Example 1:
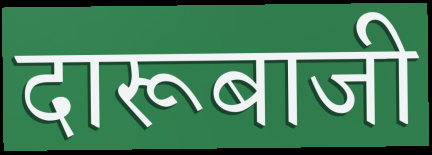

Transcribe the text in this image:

दारूबाजी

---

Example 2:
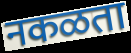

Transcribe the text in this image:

नकळता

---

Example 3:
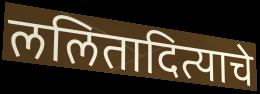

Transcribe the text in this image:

ललितादित्याचे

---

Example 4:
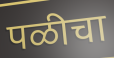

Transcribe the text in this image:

पळीचा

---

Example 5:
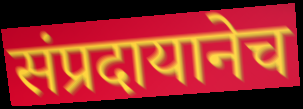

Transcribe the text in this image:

संप्रदायानेच